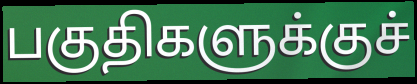
பகுதிகளுக்குச்